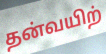
தன்வயிற்